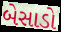
બેસાડો